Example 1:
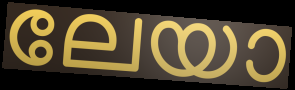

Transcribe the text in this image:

ലേയാ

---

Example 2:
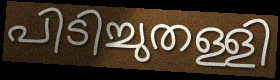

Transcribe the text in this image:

പിടിച്ചുതള്ളി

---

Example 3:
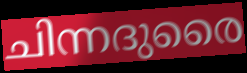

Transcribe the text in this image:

ചിന്നദുരൈ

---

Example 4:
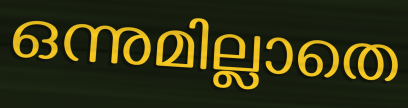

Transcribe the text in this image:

ഒന്നുമില്ലാതെ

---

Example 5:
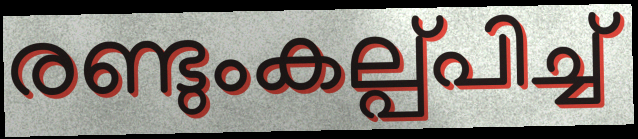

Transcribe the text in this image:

രണ്ടുംകല്പ്പിച്ച്